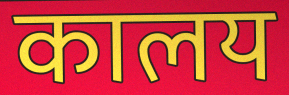
कालय